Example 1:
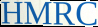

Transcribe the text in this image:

HMRC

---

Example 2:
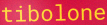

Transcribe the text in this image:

tibolone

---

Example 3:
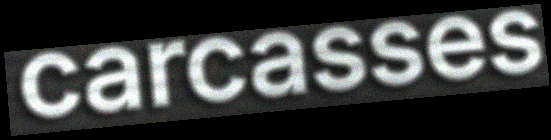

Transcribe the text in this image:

carcasses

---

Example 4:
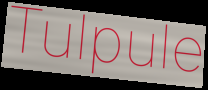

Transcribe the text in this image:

Tulpule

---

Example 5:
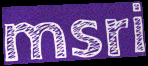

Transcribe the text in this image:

msri